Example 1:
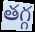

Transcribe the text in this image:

తగ్గ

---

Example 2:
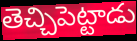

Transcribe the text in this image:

తెచ్చిపెట్టాడు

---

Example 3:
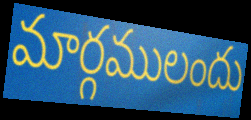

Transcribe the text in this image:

మార్గములందు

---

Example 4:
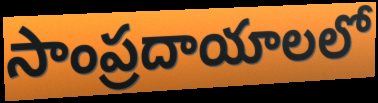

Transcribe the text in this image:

సాంప్రదాయాలలో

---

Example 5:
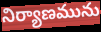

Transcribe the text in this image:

నిర్యాణమును